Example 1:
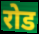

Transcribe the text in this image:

रोड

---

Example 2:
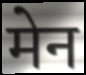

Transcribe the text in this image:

मेन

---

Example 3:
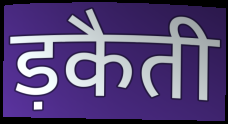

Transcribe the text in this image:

ड़कैती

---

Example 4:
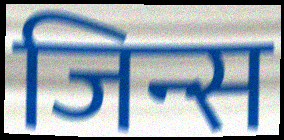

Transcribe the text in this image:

जिन्‍स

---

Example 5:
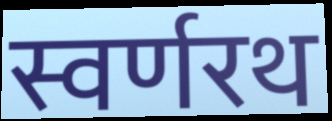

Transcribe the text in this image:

स्वर्णरथ